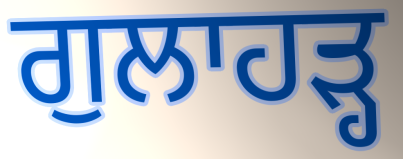
ਗੁਲਾਹੜ੍ਹ